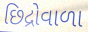
છિદ્રોવાળા